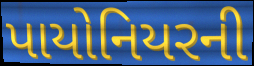
પાયોનિયરની